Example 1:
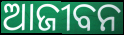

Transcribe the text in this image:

ଆଜୀବନ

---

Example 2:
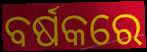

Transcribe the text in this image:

ବର୍ଷକରେ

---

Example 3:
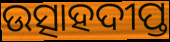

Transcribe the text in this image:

ଉତ୍ସାହଦୀପ୍ତ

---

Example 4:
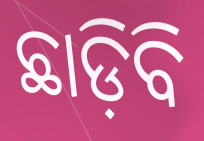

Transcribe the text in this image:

ଛାଡ଼ିବି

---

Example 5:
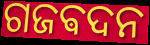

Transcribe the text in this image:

ଗଜଵଦନ